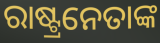
ରାଷ୍ଟ୍ରନେତାଙ୍କ